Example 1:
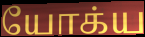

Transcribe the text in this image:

யோக்ய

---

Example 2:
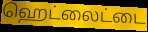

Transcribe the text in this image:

ஹெட்லைட்டை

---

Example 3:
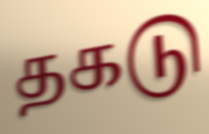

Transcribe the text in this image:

தகடு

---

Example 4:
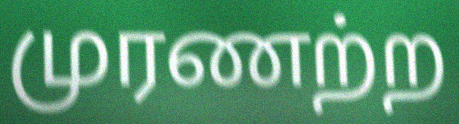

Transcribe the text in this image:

முரணற்ற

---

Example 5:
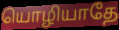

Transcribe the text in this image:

யொழியாதே